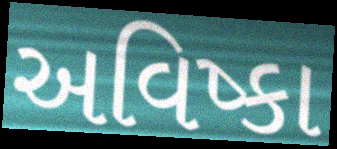
અવિષ્કા